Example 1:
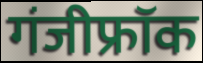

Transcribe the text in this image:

गंजीफ्रॉक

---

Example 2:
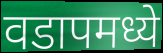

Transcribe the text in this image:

वडापमध्ये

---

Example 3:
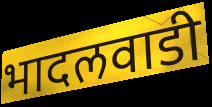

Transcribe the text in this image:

भादलवाडी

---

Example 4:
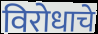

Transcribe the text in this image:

विरोधाचे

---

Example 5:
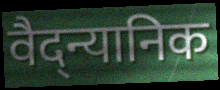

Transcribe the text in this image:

वैद्न्यानिक